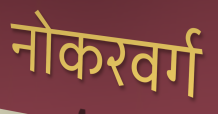
नोकरवर्ग